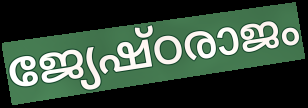
ജ്യേഷ്ഠരാജം